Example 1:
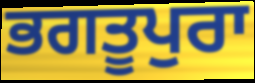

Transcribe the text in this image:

ਭਗਤੂਪੁਰਾ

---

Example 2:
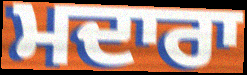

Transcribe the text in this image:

ਮਦਾਰਾ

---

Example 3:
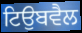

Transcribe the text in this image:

ਟਿਉਬਵੈਲ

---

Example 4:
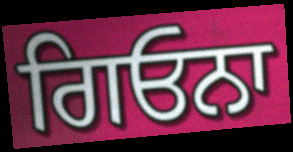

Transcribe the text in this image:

ਗਿਓਨਾ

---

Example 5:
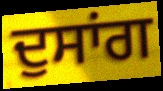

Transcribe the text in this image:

ਦੁਸਾਂਗ